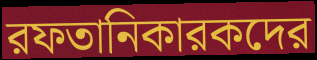
রফতানিকারকদের